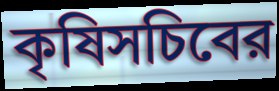
কৃষিসচিবের